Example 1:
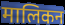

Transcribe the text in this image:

मालिकन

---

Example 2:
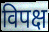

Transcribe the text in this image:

विपक्ष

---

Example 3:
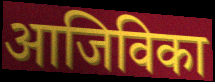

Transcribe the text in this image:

आजिविका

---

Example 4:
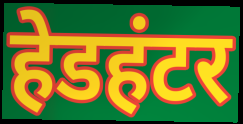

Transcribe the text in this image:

हेडहंटर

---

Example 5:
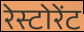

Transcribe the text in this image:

रेस्टोरेंट